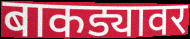
बाकड्यावर